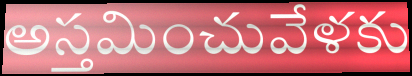
అస్తమించువేళకు